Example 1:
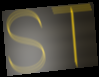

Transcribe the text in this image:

ST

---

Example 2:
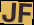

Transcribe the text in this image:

JF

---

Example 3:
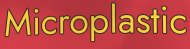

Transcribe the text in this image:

Microplastic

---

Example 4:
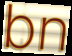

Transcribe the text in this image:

bn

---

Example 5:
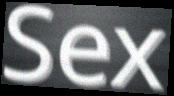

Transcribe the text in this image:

Sex